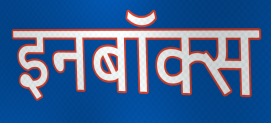
इनबॉक्स